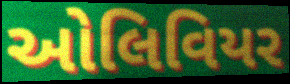
ઓલિવિયર